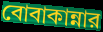
বোবাকান্নার